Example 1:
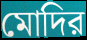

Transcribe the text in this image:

মোদির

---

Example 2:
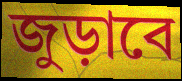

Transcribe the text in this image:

জুড়াবে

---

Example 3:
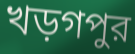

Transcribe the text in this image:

খড়গপুর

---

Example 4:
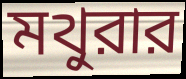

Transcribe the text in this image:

মথুরার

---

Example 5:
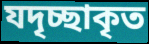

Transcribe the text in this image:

যদৃচ্ছাকৃত